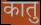
कातु